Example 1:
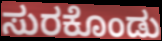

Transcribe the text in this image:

ಸುರಕೊಂಡು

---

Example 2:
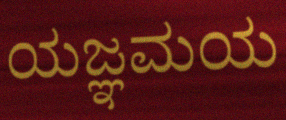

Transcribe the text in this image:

ಯಜ್ಞಮಯ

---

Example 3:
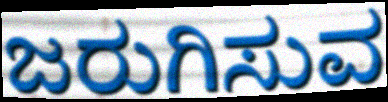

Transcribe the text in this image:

ಜರುಗಿಸುವ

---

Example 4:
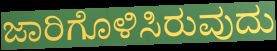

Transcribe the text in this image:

ಜಾರಿಗೊಳಿಸಿರುವುದು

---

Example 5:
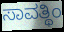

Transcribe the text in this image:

ಸಾವತ್ಥಿಂ